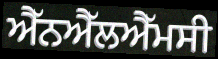
ਐੱਨਐੱਲਐੱਮਸੀ